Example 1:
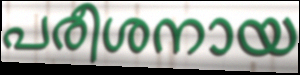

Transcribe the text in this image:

പരീശനായ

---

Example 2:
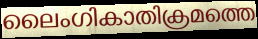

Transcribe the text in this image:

ലൈംഗികാതിക്രമത്തെ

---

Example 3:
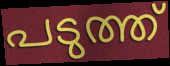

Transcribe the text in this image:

പടുത്ത്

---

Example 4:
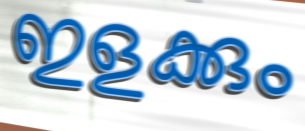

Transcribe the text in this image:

ഇളക്കും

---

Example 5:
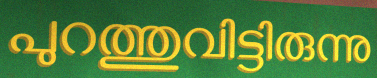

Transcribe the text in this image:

പുറത്തുവിട്ടിരുന്നു